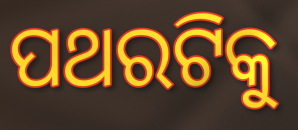
ପଥରଟିକୁ